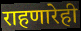
राहणारेही